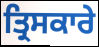
ਤ੍ਰਿਸਕਾਰੇ